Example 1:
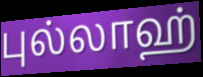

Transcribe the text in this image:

புல்லாஹ்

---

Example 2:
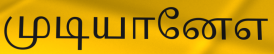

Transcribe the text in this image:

முடியானேஎ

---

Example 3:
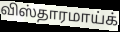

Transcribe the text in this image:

விஸ்தாரமாய்க்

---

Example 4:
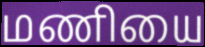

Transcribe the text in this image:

மணியை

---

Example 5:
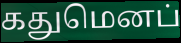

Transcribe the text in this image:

கதுமெனப்